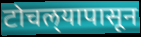
टोचल्यापासून